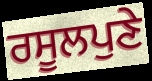
ਰਸੂਲਪੁਣੇ